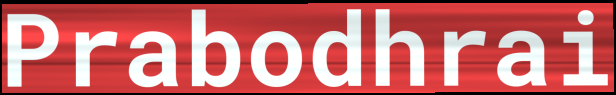
Prabodhrai